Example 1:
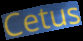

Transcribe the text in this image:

Cetus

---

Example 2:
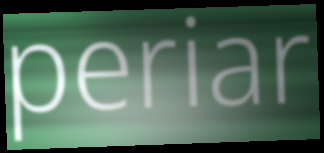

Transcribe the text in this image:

periar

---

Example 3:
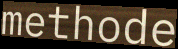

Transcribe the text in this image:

methode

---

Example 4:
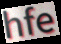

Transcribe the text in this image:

hfe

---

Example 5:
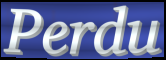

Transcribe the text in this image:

Perdu